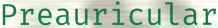
Preauricular